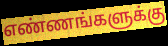
எண்ணங்களுக்கு